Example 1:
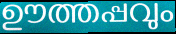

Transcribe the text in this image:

ഊത്തപ്പവും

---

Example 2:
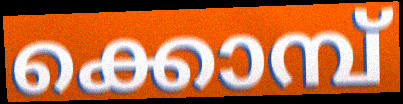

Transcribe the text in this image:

ക്കൊമ്പ്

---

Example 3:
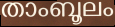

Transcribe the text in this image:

താംബൂലം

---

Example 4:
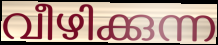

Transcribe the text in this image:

വീഴിക്കുന്ന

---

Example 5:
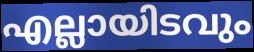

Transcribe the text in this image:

എല്ലായിടവും